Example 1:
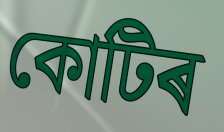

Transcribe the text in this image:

কোটিৰ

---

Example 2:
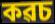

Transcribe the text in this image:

কৱচ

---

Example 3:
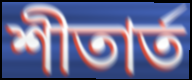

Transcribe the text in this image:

শীতাৰ্ত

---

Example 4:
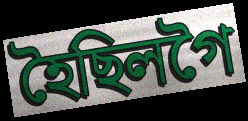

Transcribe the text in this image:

হৈছিলগৈ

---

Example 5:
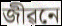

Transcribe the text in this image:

জীৱনে